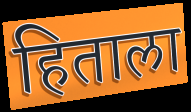
हिताला